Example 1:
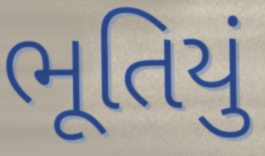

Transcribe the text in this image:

ભૂતિયું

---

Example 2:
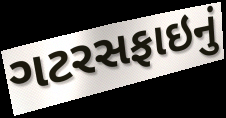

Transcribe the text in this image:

ગટરસફાઇનું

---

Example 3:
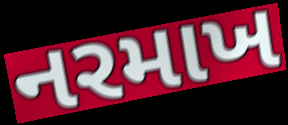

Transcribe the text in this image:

નરમાખ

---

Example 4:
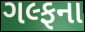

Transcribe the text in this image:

ગલ્ફના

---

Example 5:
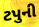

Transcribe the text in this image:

ટપુની